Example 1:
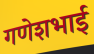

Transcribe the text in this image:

गणेशभाई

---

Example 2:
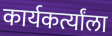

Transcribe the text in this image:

कार्यकर्त्यांला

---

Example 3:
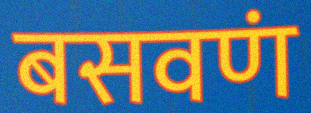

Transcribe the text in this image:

बसवणं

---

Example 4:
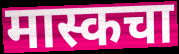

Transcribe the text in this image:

मास्कचा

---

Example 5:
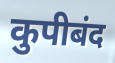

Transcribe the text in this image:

कुपीबंद